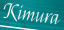
Kimura